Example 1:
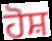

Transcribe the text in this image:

ਹੋਸ਼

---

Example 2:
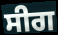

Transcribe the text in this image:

ਸੀਗ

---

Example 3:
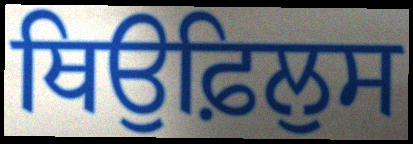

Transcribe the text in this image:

ਥਿਉਫ਼ਿਲੁਸ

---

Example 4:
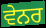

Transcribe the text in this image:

ਵੇਨਰ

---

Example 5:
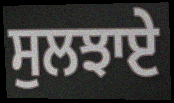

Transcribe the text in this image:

ਸੁਲਝਾਏ